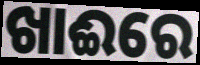
ଖାଈରେ